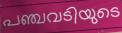
പഞ്ചവടിയുടെ